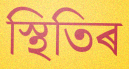
স্থিতিৰ